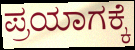
ಪ್ರಯಾಗಕ್ಕೆ